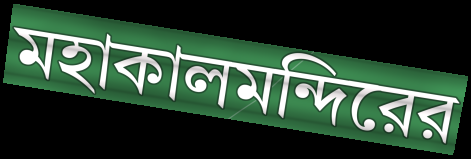
মহাকালমন্দিরের